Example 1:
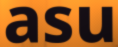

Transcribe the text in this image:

asu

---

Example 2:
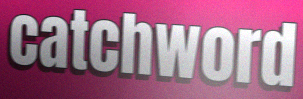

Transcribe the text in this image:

catchword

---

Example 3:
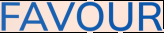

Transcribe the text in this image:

FAVOUR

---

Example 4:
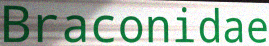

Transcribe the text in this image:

Braconidae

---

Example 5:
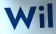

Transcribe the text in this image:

Wil